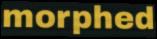
morphed